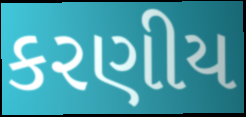
કરણીય